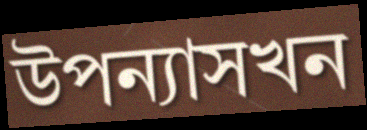
উপন্যাসখন